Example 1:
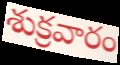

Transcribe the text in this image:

శుక్రవారం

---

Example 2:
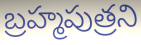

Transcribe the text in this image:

బ్రహ్మపుత్రని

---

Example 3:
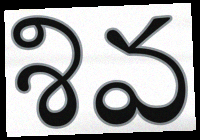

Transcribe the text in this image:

శివ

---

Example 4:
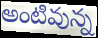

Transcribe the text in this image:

అంటివున్న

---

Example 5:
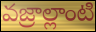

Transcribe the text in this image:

వజ్రాల్లాంటి